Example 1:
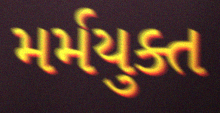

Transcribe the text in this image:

મર્મયુક્ત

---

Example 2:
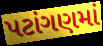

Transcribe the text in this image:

પટાંગણમાં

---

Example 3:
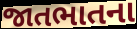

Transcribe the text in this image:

જાતભાતના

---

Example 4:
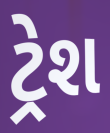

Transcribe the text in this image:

ટ્રેશ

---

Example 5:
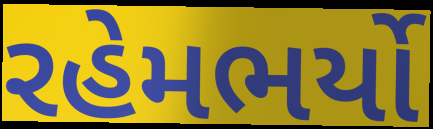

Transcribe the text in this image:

રહેમભર્યો